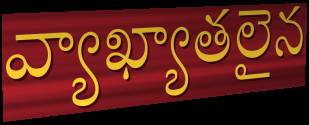
వ్యాఖ్యాతలైన